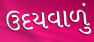
ઉદયવાળું